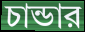
চান্ডার